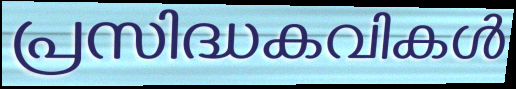
പ്രസിദ്ധകവികൾ